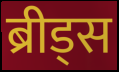
ब्रीड्स